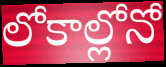
లోకాల్లోనో